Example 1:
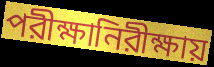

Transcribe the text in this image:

পরীক্ষানিরীক্ষায়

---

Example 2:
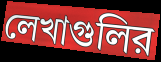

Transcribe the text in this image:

লেখাগুলির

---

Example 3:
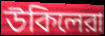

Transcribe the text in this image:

উকিলেরা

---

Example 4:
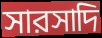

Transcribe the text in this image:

সারসাদি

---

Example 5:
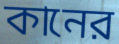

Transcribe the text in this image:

কানের